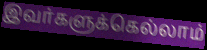
இவர்களுக்கெல்லாம்